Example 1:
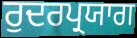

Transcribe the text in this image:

ਰੁਦਰਪ੍ਰਯਾਗ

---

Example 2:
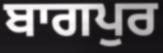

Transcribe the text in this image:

ਬਾਗਪੁਰ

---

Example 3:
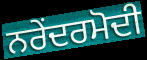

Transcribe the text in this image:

ਨਰੇਂਦਰਮੋਦੀ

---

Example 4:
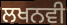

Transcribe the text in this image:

ਲਖਨਵੀ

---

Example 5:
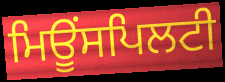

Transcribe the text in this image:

ਮਿਊਂਸਪਿਲਟੀ